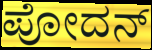
ಪೋದನ್